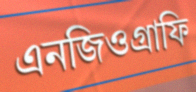
এনজিওগ্রাফি